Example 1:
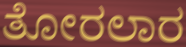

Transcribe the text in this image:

ತೋರಲಾರ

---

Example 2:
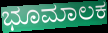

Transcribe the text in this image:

ಭೂಮಾಲಕ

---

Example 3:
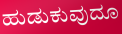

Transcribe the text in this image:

ಹುಡುಕುವುದೂ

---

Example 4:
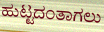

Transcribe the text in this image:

ಹುಟ್ಟದಂತಾಗಲು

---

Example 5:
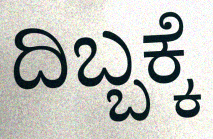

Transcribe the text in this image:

ದಿಬ್ಬಕ್ಕೆ